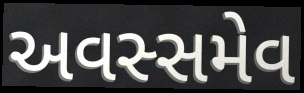
અવસ્સમેવ